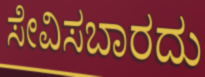
ಸೇವಿಸಬಾರದು